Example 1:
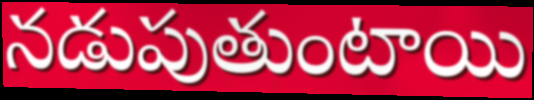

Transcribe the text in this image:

నడుపుతుంటాయి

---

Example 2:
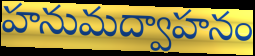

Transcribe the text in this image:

హనుమద్వాహనం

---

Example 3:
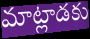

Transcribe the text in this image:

మాట్లాడకు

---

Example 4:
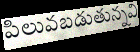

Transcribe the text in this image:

పిలువబడుతున్నవి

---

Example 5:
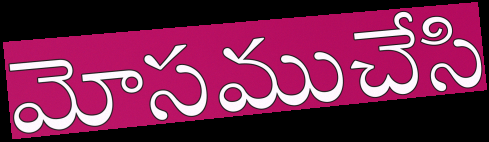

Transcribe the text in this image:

మోసముచేసి